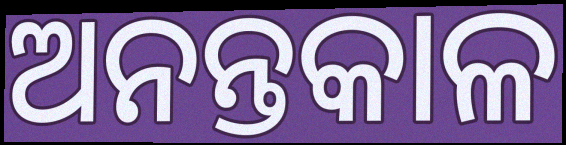
ଅନନ୍ତକାଳ